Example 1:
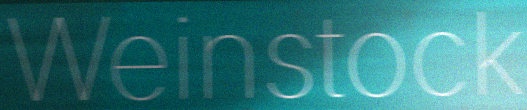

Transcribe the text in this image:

Weinstock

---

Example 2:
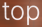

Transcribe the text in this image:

top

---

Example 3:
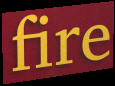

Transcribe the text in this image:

fire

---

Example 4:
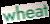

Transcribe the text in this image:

wheat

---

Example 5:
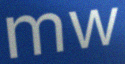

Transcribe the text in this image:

mw